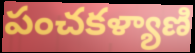
పంచకళ్యాణి